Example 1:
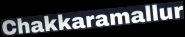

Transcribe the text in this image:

Chakkaramallur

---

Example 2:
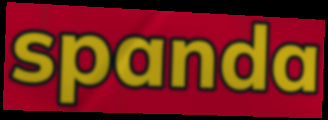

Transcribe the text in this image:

spanda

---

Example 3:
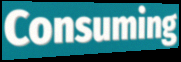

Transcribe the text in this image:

Consuming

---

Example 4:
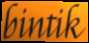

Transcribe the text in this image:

bintik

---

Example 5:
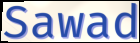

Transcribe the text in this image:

Sawad